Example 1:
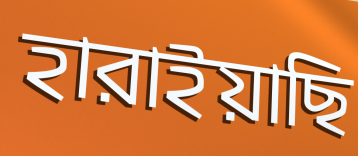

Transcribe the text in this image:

হারাইয়াছি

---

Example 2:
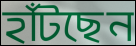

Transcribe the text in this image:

হাঁটছেন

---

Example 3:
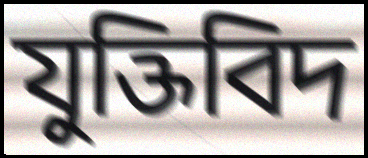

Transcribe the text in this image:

যুক্তিবিদ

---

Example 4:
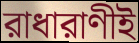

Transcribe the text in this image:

রাধারাণীই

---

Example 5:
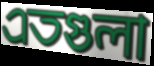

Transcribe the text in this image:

এতগুলা